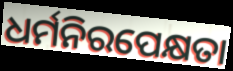
ଧର୍ମନିରପେକ୍ଷତା